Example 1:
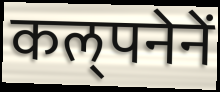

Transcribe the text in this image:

कल्पनेनें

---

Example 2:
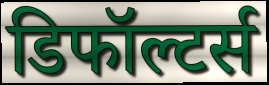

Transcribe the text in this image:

डिफॉल्टर्स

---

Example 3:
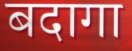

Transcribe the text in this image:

बदागा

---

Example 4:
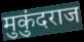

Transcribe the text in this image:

मुकुंदराज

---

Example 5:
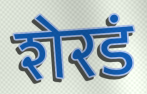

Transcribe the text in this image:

शेरडं